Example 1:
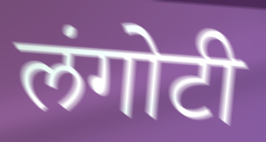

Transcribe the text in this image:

लंगोटी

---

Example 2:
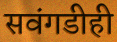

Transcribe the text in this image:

सवंगडीही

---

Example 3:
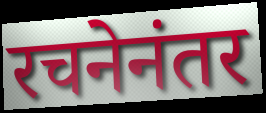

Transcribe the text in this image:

रचनेनंतर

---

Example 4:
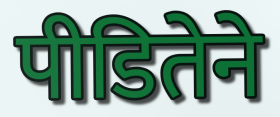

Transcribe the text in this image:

पीडितेने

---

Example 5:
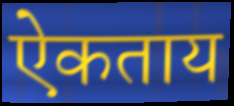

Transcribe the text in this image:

ऐकताय